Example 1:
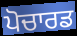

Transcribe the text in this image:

ਪੋਚਾਰਡ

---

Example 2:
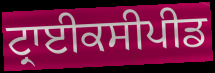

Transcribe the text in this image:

ਟ੍ਰਾਈਕਸੀਪੀਡ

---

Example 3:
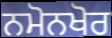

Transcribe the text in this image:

ਨਮੋਨਖੋਰ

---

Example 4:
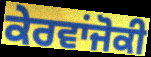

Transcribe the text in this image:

ਕੇਰਵਾਂਜੋਕੀ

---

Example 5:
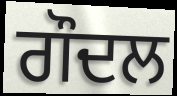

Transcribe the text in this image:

ਗੌਦਲ